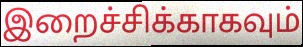
இறைச்சிக்காகவும்